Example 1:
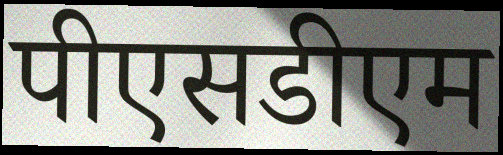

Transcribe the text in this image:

पीएसडीएम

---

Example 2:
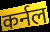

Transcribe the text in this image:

कर्नल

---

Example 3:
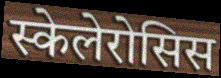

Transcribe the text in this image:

स्केलेरोसिस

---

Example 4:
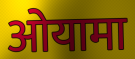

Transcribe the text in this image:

ओयामा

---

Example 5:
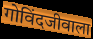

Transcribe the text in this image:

गोविंदजीवाला